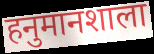
हनुमानशाला